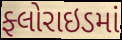
ફ્લોરાઇડમાં